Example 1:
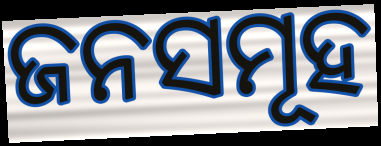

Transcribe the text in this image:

ଜନସମୂହ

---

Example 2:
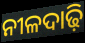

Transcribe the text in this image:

ନୀଳଦାଢ଼ି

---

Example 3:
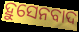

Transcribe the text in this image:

ହୁସେନବାଦ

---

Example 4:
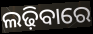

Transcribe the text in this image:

ଲଢ଼ିବାରେ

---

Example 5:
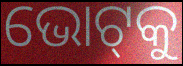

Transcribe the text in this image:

ଭୋଟ୍‍କୁ